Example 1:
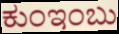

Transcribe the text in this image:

ಕುಂಇಂಬು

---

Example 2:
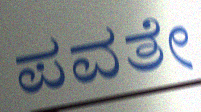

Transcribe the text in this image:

ಪವತೇ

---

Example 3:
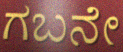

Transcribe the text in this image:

ಗಬನೇ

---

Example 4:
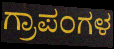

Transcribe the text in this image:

ಗ್ರಾಪಂಗಳ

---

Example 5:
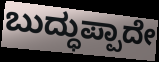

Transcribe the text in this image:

ಬುದ್ಧುಪ್ಪಾದೇ